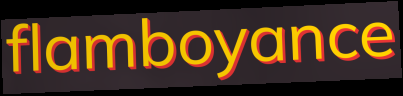
flamboyance